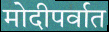
मोदीपर्वात